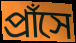
প্রাঁসে